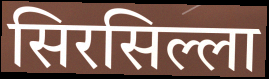
सिरसिल्ला